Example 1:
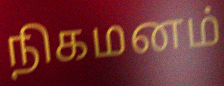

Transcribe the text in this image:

நிகமனம்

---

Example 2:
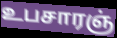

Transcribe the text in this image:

உபசாரஞ்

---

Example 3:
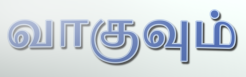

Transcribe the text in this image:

வாகுவும்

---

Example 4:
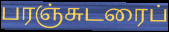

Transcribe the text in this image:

பரஞ்சுடரைப்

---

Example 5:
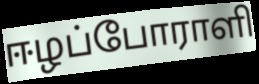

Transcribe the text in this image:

ஈழப்போராளி